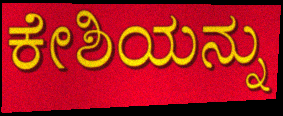
ಕೇಶಿಯನ್ನು